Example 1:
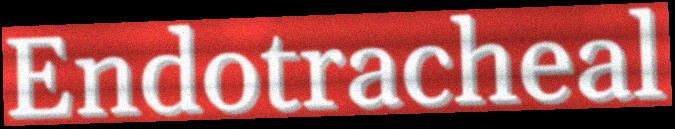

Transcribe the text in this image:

Endotracheal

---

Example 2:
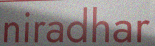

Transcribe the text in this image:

niradhar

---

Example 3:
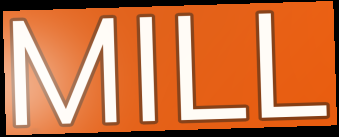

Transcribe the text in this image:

MILL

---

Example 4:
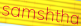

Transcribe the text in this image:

samshtha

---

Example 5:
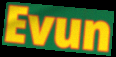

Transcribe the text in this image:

Evun